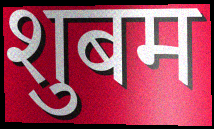
शुबम